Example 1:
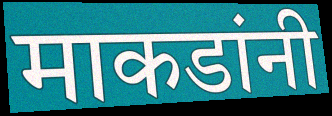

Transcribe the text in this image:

माकडांनी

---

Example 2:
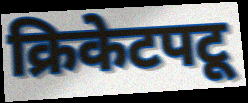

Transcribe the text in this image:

क्रिकेटपटू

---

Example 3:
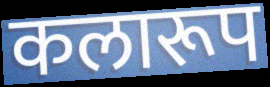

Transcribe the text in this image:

कलारूप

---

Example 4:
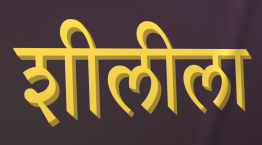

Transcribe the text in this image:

शीलीला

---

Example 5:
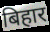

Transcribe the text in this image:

बिहार